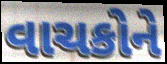
વાચકોને